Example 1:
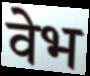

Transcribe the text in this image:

वेभ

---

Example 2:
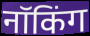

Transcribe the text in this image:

नॉकिंग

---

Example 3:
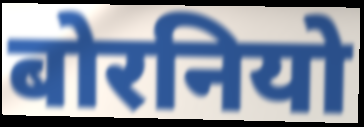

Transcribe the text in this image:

बोरनियो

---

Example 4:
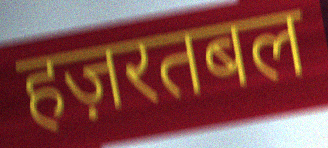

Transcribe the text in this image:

हज़रतबल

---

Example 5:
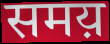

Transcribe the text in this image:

समय़